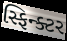
સ્ફિન્ક્ટર